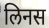
लिनस